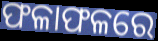
ଫଳାଫଳରେ